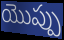
యొప్పు